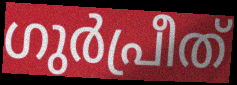
ഗുർപ്രീത്